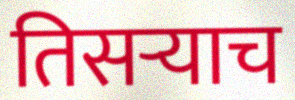
तिसर्‍याच